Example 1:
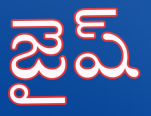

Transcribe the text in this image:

జైష్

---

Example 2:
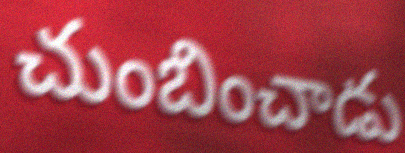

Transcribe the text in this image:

చుంబించాడు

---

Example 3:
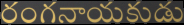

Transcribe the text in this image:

రంగనాయకుడు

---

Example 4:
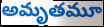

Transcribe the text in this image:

అమృతమూ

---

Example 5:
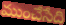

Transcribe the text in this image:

ముంచేసేది